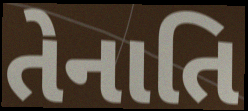
તેનાતિ